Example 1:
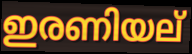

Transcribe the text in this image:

ഇരണിയല്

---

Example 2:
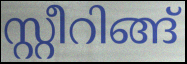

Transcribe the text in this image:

സ്റ്റീറിങ്ങ്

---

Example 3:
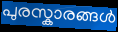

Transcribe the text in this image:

പുരസ്കാരങ്ങൾ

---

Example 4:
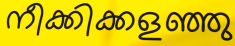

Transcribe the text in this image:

നീക്കിക്കളഞ്ഞു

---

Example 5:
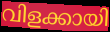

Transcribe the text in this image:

വിളക്കായി